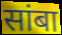
सांबा